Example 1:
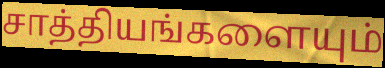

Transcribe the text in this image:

சாத்தியங்களையும்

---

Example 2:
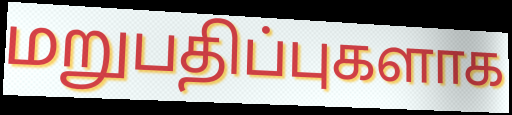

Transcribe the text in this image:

மறுபதிப்புகளாக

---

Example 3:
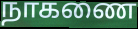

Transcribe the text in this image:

நாகணை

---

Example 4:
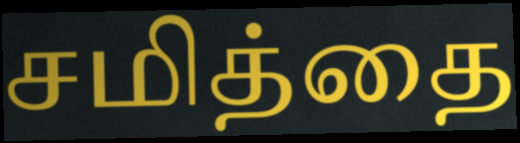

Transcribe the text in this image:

சமித்தை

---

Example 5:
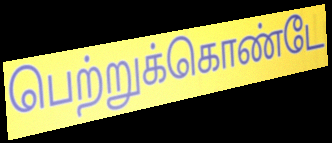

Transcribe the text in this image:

பெற்றுக்கொண்டே